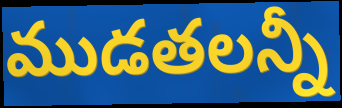
ముడతలన్నీ